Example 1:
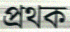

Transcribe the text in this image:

প্রথক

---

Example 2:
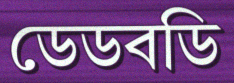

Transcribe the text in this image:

ডেডবডি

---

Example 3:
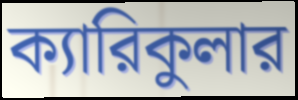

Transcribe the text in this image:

ক্যারিকুলার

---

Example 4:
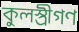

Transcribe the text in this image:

কুলস্ত্রীগণ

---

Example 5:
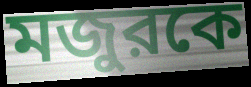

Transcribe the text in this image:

মজুরকে